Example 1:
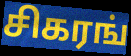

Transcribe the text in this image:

சிகரங்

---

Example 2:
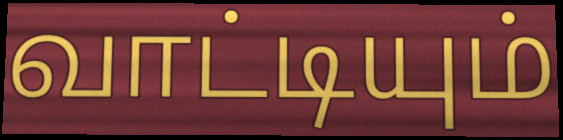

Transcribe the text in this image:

வாட்டியும்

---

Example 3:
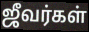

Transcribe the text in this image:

ஜீவர்கள்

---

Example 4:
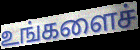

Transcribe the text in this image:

உங்களைச்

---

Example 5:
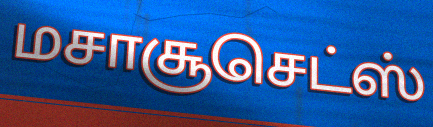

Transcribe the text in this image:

மசாசூசெட்ஸ்